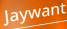
Jaywant